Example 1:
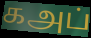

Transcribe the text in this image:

கஅப்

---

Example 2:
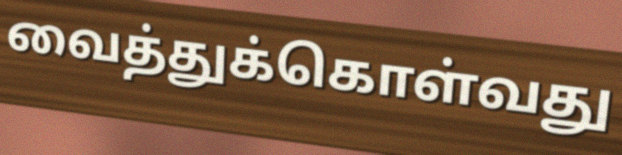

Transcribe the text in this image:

வைத்துக்கொள்வது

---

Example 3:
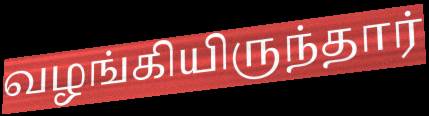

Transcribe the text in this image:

வழங்கியிருந்தார்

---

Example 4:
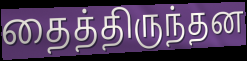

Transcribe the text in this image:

தைத்திருந்தன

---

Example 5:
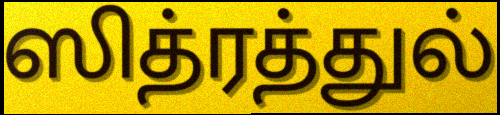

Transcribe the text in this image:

ஸித்ரத்துல்